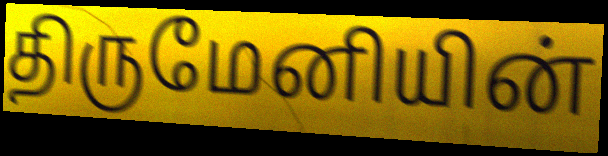
திருமேனியின்